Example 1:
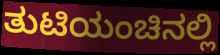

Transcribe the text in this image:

ತುಟಿಯಂಚಿನಲ್ಲಿ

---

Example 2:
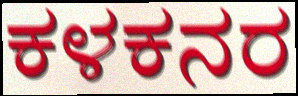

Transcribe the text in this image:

ಕಳಕನರ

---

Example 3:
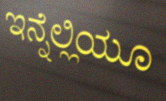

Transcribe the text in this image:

ಇನ್ನೆಲ್ಲಿಯೂ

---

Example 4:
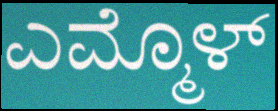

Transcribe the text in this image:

ಎಮ್ಮೊಳ್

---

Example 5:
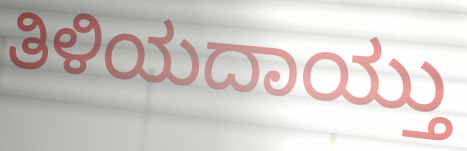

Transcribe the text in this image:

ತಿಳಿಯದಾಯ್ತು